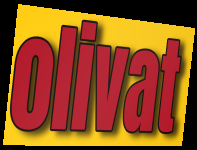
olivat